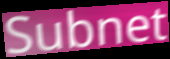
Subnet